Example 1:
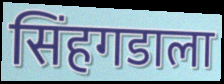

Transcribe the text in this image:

सिंहगडाला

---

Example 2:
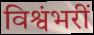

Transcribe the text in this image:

विश्वंभरीं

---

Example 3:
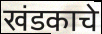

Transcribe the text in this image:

खंडकाचे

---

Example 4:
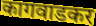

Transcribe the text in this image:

कागवाडकर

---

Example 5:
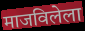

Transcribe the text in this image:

माजविलेला